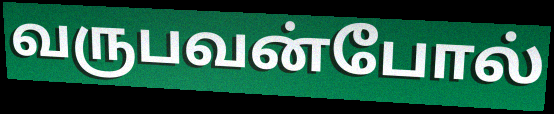
வருபவன்போல்